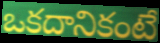
ఒకదానికంటే